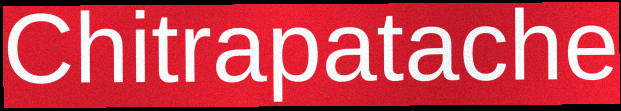
Chitrapatache